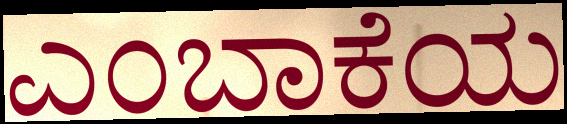
ಎಂಬಾಕೆಯ